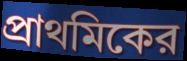
প্রাথমিকের